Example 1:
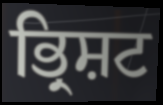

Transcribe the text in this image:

ਭ੍ਰਿਸ਼ਟ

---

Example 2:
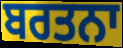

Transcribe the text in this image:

ਬਰਤਨਾ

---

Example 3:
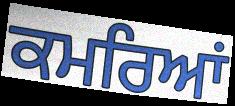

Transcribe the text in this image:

ਕਮਰਿਆਂ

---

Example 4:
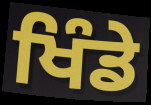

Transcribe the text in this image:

ਖਿੰਡੇ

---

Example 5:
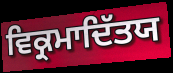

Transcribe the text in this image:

ਵਿਕ੍ਰਮਾਦਿੱਤਯ